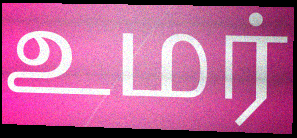
உமர்